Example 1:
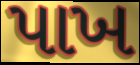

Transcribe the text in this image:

પાખ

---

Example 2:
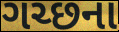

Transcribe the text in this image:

ગચ્છના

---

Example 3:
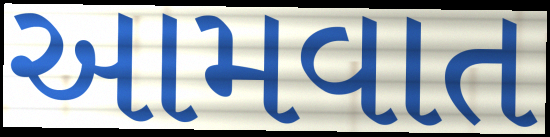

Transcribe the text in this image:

આમવાત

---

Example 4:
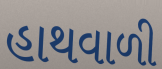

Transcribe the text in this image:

હાથવાળી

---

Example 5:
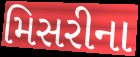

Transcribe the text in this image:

મિસરીના